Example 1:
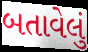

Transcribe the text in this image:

બતાવેલું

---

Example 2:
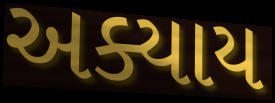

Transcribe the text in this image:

અક્યાય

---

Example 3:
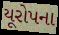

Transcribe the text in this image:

યૂરોપના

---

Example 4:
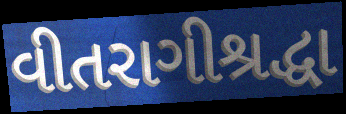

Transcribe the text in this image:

વીતરાગીશ્રદ્ધા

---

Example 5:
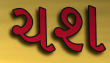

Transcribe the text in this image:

ચશ